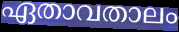
ഏതാവതാലം